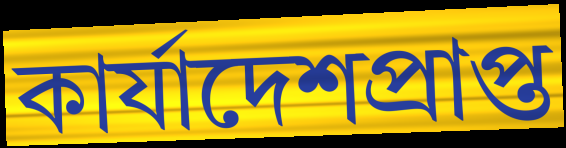
কার্যাদেশপ্রাপ্ত